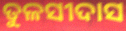
ତୁଳସୀଦାସ